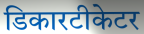
डिकारटीकेटर